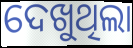
ଦେଖୁଥିଲା